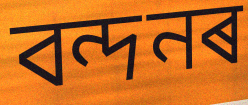
বন্দনৰ